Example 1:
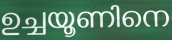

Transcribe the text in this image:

ഉച്ചയൂണിനെ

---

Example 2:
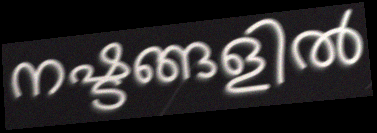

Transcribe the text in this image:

നഷ്ടങ്ങളിൽ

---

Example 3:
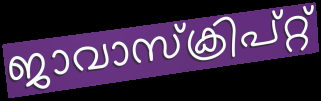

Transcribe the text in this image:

ജാവാസ്ക്രിപ്റ്റ്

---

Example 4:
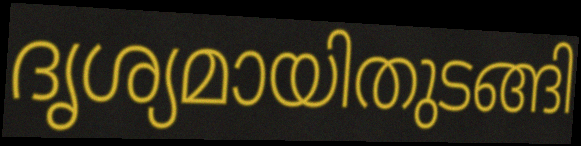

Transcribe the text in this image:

ദൃശ്യമായിതുടങ്ങി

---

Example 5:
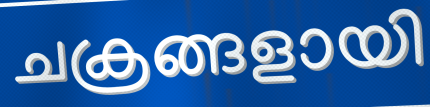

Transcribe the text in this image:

ചക്രങ്ങളായി